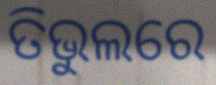
ତିଭୁଲରେ